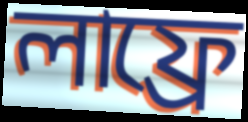
লাফ্রে